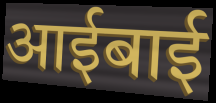
आईबाई